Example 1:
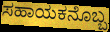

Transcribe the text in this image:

ಸಹಾಯಕನೊಬ್ಬ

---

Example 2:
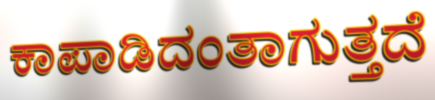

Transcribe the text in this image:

ಕಾಪಾಡಿದಂತಾಗುತ್ತದೆ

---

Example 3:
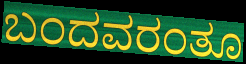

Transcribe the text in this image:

ಬಂದವರಂತೂ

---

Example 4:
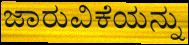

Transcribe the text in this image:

ಜಾರುವಿಕೆಯನ್ನು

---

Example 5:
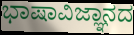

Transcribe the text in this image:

ಭಾಷಾವಿಜ್ಞಾನದ